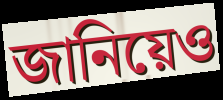
জানিয়েও